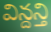
విన్దన్తి